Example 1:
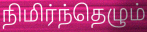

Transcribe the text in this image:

நிமிர்ந்தெழும்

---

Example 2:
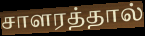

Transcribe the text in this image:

சாளரத்தால்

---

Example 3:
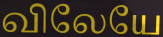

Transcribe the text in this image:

விலேயே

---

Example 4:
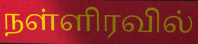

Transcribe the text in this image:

நள்ளிரவில்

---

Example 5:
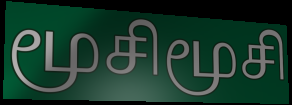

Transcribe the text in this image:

மூசிமூசி